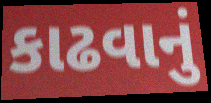
કાઢવાનું